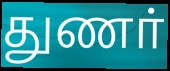
துணர்